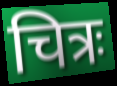
चित्रः